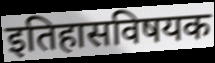
इतिहासविषयक